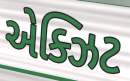
એક્ઝિટ